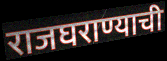
राजघराण्याची